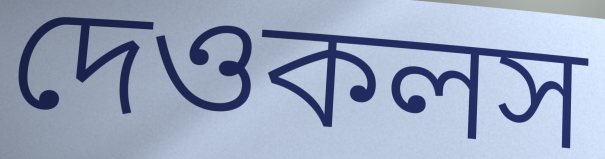
দেওকলস